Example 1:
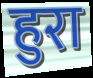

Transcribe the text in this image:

हुरा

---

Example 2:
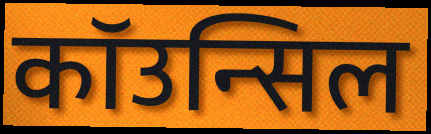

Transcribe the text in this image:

कॉउन्सिल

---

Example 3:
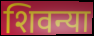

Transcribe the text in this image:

शिवन्या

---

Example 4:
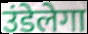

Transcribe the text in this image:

उंडेलेगा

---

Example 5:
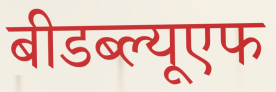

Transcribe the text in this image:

बीडब्ल्यूएफ